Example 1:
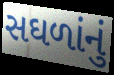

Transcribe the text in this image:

સઘળાંનું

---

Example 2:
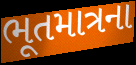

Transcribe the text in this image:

ભૂતમાત્રના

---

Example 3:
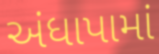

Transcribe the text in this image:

અંધાપામાં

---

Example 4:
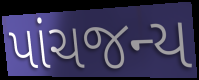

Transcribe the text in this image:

પાંચજન્ય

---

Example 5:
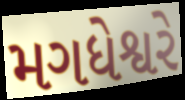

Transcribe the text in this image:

મગધેશ્વરે